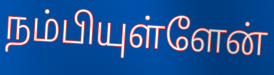
நம்பியுள்ளேன்